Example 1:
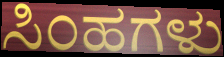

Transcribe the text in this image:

ಸಿಂಹಗಳು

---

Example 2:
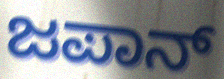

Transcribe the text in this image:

ಜಪಾನ್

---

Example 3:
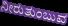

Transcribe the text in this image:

ನೀರುತುಂಬುವ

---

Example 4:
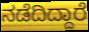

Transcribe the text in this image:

ನಡೆದಿದ್ದಾರೆ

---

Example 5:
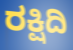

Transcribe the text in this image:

ರಕ್ಷಿದಿ